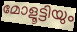
മോളൂട്ടിയും